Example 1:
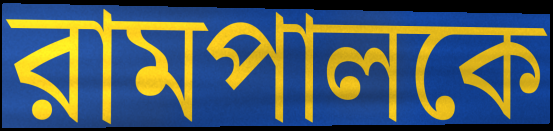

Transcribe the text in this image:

রামপালকে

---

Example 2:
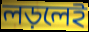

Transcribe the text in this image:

লড়লেই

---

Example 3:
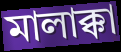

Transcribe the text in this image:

মালাক্কা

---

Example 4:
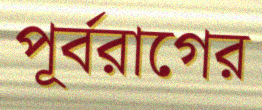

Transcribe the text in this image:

পূর্বরাগের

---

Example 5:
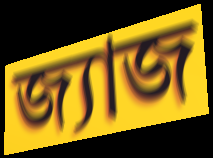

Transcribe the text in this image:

জ্যাজ